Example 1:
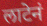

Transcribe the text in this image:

लाटेनं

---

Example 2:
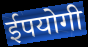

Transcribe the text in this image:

ईपयोगी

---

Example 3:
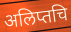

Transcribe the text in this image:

अलिप्तचि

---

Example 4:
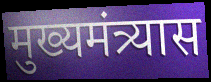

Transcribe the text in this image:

मुख्यमंत्र्यास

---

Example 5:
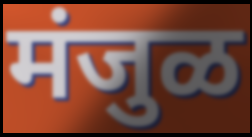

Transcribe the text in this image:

मंजुळ